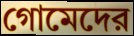
গোমেদের